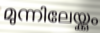
മുന്നിലേയ്ക്കും